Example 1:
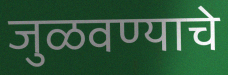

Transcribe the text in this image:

जुळवण्याचे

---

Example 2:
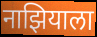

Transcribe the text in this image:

नाझियाला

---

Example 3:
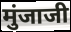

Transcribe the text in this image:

मुंजाजी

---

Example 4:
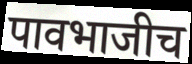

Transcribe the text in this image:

पावभाजीच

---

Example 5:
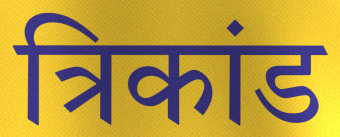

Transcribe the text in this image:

त्रिकांड